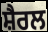
ਸ਼ੈਰਲ